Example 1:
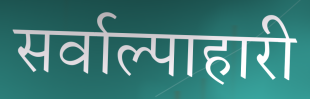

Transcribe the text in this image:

सर्वाल्पाहारी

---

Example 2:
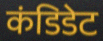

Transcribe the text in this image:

कंडिडेट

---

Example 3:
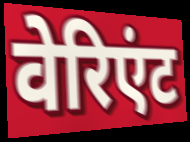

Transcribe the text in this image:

वेरिएंट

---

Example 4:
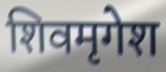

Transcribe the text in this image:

शिवमृगेश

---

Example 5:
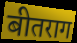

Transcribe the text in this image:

बीतराग